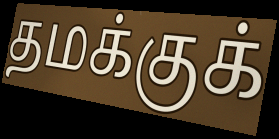
தமக்குக்